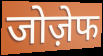
जोज़ेफ